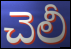
చెలీ